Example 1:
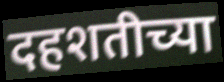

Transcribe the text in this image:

दहशतीच्या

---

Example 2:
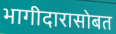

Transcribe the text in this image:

भागीदारासोबत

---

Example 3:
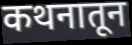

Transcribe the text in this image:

कथनातून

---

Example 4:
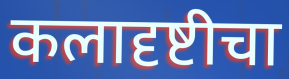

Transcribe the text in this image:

कलादृष्टीचा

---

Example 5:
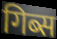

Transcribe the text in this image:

गिब्स